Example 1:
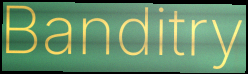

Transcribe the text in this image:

Banditry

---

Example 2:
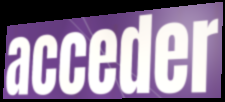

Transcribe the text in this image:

acceder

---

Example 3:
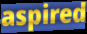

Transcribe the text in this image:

aspired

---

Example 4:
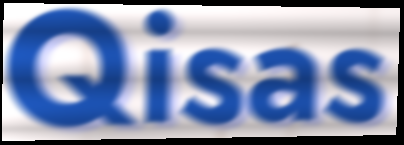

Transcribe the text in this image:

Qisas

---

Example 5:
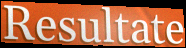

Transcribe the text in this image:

Resultate